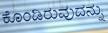
ಕೊಂಡಿರುವುದನ್ನು